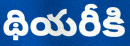
థియరీకి